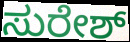
ಸುರೇಶ್